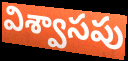
విశ్వాసపు